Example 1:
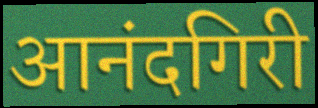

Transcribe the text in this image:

आनंदगिरी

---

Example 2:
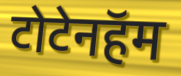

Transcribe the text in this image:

टोटेनहॅम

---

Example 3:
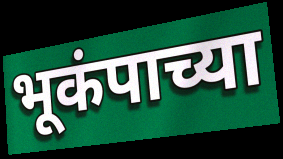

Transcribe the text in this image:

भूकंपाच्या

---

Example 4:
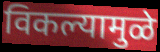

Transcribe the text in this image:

विकल्यामुळे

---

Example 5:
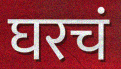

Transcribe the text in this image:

घरचं